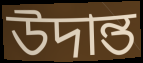
উদান্ত